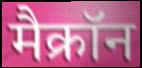
मैक्रॉन